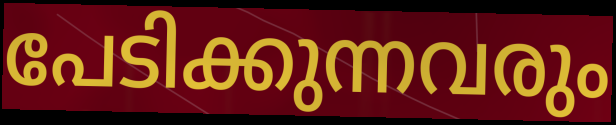
പേടിക്കുന്നവരും